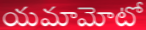
యమామోటో